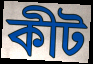
কীট